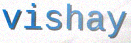
vishay